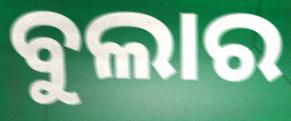
ବୁଲାର